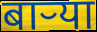
बाऱ्या